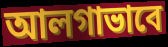
আলগাভাবে